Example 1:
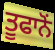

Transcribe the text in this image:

ਤੂਫਾਨੋਂ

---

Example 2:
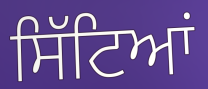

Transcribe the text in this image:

ਸਿੱਟਿਆਂ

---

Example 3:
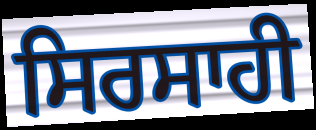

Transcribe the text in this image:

ਸਿਰਸਾਹੀ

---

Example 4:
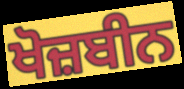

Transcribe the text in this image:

ਖੋਜ਼ਬੀਨ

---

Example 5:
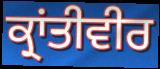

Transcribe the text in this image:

ਕ੍ਰਾਂਤੀਵੀਰ